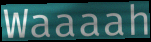
Waaaah